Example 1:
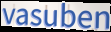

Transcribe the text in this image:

vasuben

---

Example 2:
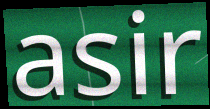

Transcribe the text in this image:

asir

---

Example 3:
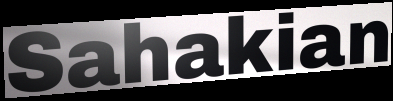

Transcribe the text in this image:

Sahakian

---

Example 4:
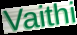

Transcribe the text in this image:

Vaithi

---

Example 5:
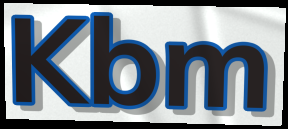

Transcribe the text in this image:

Kbm